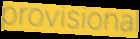
provisional